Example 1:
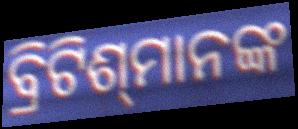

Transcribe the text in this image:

ବ୍ରିଟିଶ୍‌ମାନଙ୍କ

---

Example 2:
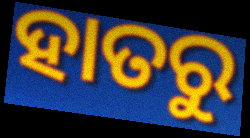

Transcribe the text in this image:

ହାତରୁ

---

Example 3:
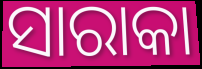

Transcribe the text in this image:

ସାରାକା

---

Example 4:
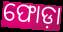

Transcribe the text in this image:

ଫୋଡ଼ା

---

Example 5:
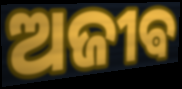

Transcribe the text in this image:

ଅଜୀଵ